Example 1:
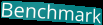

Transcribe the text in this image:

Benchmark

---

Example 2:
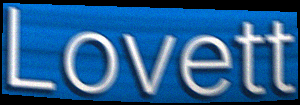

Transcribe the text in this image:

Lovett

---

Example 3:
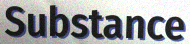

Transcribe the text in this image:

Substance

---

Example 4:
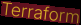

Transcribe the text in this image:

Terraform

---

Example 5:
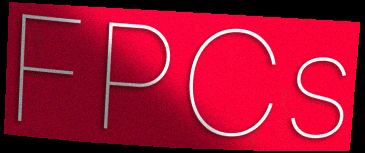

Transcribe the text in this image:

FPCs